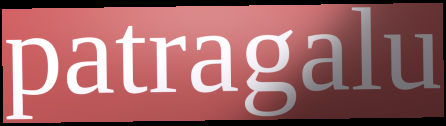
patragalu